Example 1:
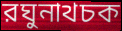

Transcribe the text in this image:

রঘুনাথচক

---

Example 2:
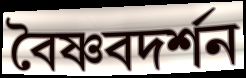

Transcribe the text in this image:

বৈষ্ণবদর্শন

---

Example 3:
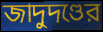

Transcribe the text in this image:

জাদুদণ্ডের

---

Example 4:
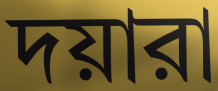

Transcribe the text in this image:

দয়ারা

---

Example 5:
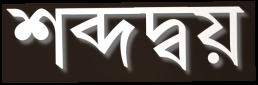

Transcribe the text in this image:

শব্দদ্বয়